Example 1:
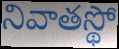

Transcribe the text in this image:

నివాతస్థో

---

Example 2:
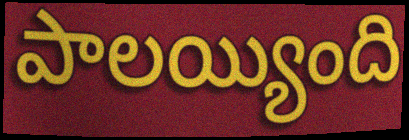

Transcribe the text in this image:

పాలయ్యింది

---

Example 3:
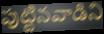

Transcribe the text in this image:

పుట్టినవాడిని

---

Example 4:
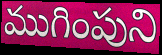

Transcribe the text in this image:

ముగింపుని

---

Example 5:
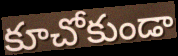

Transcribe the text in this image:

కూచోకుండా